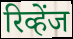
रिव्हेंज